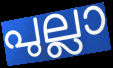
പുല്ലാ